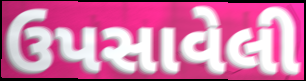
ઉપસાવેલી